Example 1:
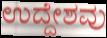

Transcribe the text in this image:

ಉದ್ದೇಶವು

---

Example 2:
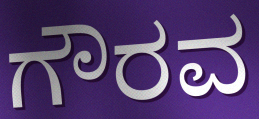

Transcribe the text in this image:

ಗೌರವ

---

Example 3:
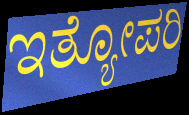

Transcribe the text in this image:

ಇತ್ಯೋಪರಿ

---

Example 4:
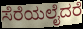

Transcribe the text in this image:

ಸೆರೆಯಲೈದರೆ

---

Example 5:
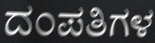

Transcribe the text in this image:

ದಂಪತಿಗಳ